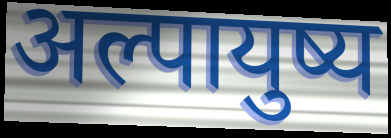
अल्पायुष्य